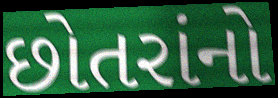
છોતરાંનો